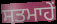
ਸਤਮਾਹੇਂ